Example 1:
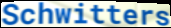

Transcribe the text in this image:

Schwitters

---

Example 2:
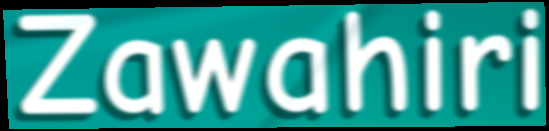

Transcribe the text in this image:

Zawahiri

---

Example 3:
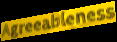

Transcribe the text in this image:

Agreeableness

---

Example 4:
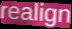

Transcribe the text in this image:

realign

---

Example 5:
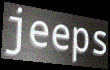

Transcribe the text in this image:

jeeps